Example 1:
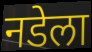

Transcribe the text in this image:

नडेला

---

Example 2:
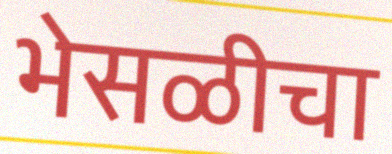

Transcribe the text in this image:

भेसळीचा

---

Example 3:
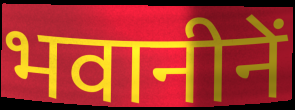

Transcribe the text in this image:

भवानीनें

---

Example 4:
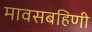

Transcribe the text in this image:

मावसबहिणी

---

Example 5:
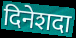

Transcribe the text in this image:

दिनेशदा